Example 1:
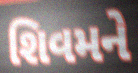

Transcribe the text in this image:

શિવમને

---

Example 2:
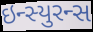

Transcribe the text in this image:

ઇન્સ્યુરન્સ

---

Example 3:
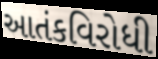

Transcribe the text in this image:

આતંકવિરોધી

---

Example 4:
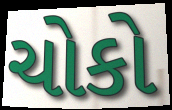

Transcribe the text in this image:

ચોકો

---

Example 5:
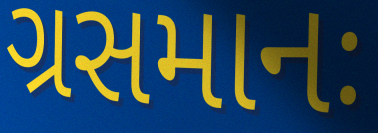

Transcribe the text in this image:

ગ્રસમાનઃ